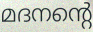
മദനന്റെ